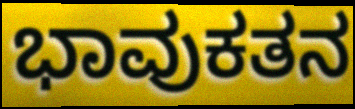
ಭಾವುಕತನ